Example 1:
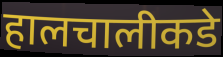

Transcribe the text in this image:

हालचालीकडे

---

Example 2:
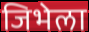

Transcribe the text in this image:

जिभेला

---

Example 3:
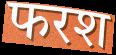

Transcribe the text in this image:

फरश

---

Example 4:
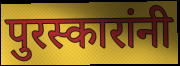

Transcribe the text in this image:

पुरस्कारांनी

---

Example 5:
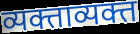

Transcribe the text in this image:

व्यक्ताव्यक्त